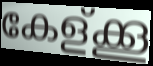
കേള്ക്കൂ